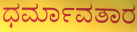
ಧರ್ಮಾವತಾರ